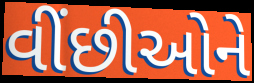
વીંછીઓને